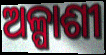
ଅଳ୍ପାଶୀ